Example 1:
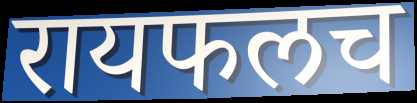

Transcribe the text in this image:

रायफलच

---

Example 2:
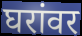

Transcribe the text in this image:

घरांवर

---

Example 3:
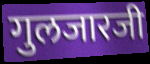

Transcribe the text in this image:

गुलजारजी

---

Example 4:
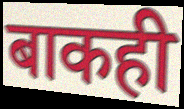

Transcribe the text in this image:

बाकही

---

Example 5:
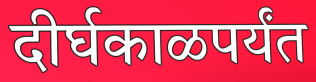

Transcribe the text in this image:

दीर्घकाळपर्यंत